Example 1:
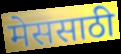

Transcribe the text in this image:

मेससाठी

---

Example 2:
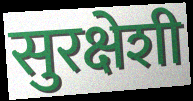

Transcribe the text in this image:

सुरक्षेशी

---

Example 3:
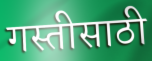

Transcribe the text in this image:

गस्तीसाठी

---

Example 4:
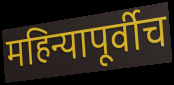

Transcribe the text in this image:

महिन्यापूर्वीच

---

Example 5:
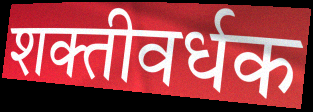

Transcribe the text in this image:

शक्तीवर्धक